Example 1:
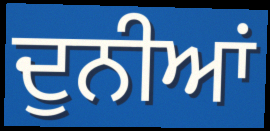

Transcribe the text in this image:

ਦੁਨੀਆਂ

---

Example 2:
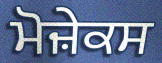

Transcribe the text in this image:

ਮੋਜ਼ੇਕਸ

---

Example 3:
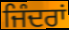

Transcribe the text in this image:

ਜਿੰਦਰਾਂ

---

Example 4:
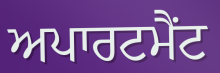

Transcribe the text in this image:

ਅਪਾਰਟਮੈਂਟ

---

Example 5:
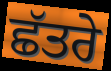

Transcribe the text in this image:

ਛੱਤਰੇ